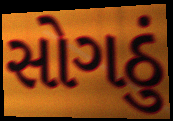
સોગઠું